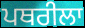
ਪਥਰੀਲਾ